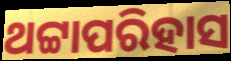
ଥଟ୍ଟାପରିହାସ